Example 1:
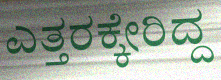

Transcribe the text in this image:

ಎತ್ತರಕ್ಕೇರಿದ್ದ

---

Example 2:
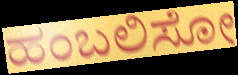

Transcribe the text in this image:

ಹಂಬಲಿಸೋ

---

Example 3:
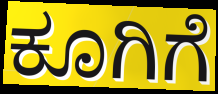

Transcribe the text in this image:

ಕೂಗಿಗೆ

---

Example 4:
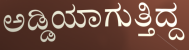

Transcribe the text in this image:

ಅಡ್ಡಿಯಾಗುತ್ತಿದ್ದ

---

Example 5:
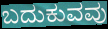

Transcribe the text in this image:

ಬದುಕುವವು